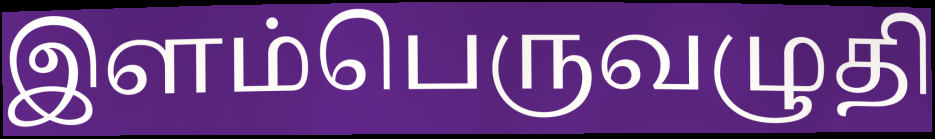
இளம்பெருவழுதி